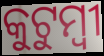
କୁଟୁମ୍ବୀ